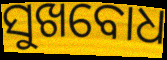
ସୁଖବୋଧ